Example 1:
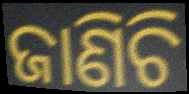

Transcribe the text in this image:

ଜାଣିଚି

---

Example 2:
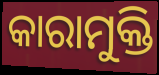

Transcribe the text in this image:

କାରାମୁକ୍ତି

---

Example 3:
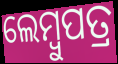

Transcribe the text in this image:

ଲେମ୍ବୁପତ୍ର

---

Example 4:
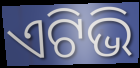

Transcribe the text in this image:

ଏଟିଭି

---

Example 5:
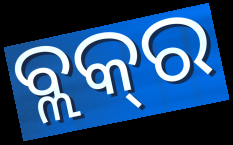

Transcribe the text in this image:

ବ୍ଲକ୍‍ର